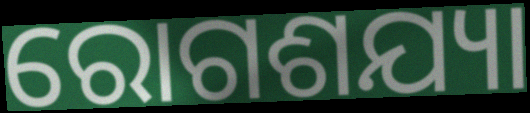
ରୋଗଶଯ୍ୟା